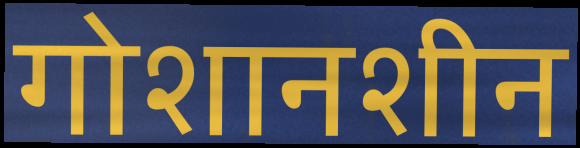
गोशानशीन